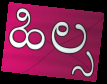
ಹಿಲ್ಸ